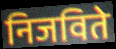
निजविते